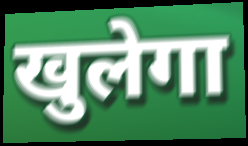
खुलेगा